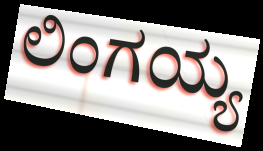
ಲಿಂಗಯ್ಯ